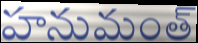
హనుమంత్